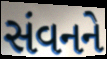
સંવનને